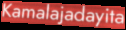
Kamalajadayita